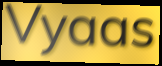
Vyaas